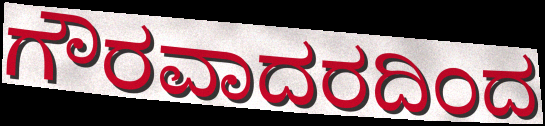
ಗೌರವಾದರದಿಂದ